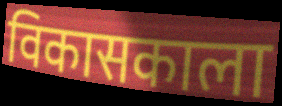
विकासकाला